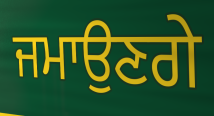
ਜਮਾਉਣਗੇ